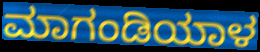
ಮಾಗಂಡಿಯಾಳ